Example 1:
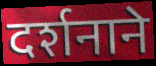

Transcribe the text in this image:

दर्शनाने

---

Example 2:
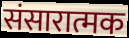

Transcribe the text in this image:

संसारात्मक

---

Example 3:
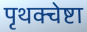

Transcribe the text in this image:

पृथक्चेष्टा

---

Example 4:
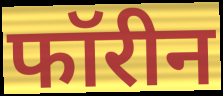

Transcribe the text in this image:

फॉरीन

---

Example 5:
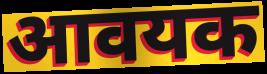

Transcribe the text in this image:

आवयक